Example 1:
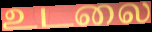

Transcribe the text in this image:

உடலை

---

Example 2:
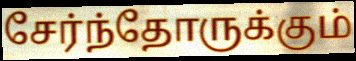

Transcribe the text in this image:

சேர்ந்தோருக்கும்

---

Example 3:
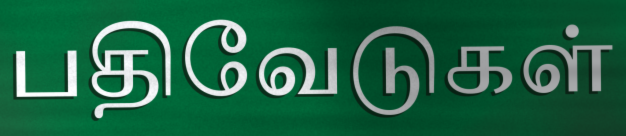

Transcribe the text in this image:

பதிவேடுகள்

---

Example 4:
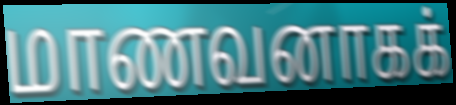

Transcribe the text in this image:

மாணவனாகக்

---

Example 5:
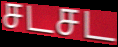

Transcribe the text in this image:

சடசட